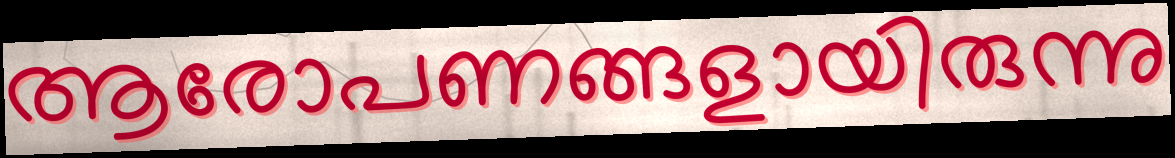
ആരോപണങ്ങളായിരുന്നു